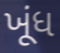
ખૂંધ